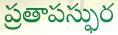
ప్రతాపస్ఫుర